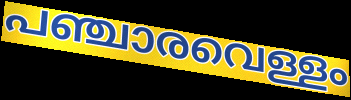
പഞ്ചാരവെള്ളം